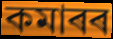
কমাৰৰ